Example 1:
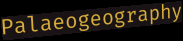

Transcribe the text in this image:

Palaeogeography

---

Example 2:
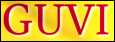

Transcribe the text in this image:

GUVI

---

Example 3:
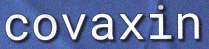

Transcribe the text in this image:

covaxin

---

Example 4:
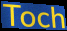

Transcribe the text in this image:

Toch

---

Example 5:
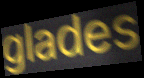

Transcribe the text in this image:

glades